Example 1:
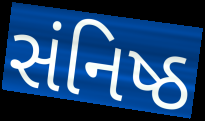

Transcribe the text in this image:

સંનિષ્ઠ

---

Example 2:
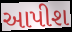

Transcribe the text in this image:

આપીશ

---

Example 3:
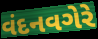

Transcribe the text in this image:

વંદનવગેરે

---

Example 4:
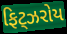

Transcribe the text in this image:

ફિટ્ઝરોય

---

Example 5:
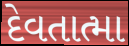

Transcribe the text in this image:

દેવતાત્મા